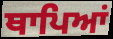
ਥਾਪਿਆਂ